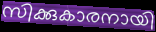
സിക്കുകാരനായി